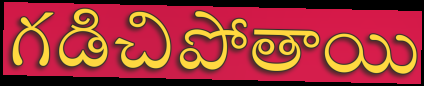
గడిచిపోతాయి